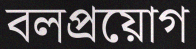
বলপ্রয়োগ